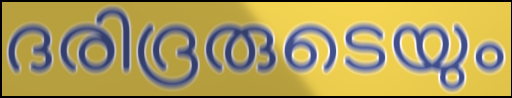
ദരിദ്രരുടെയും